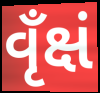
વૃઁક્ષં